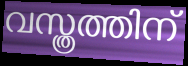
വസ്ത്രത്തിന്